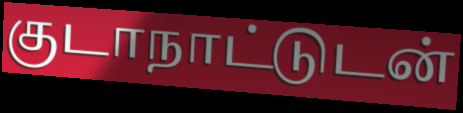
குடாநாட்டுடன்